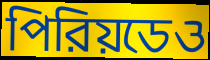
পিরিয়ডেও